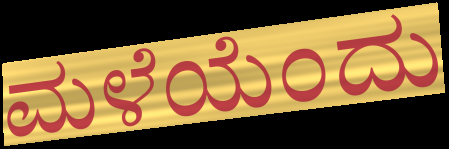
ಮಳೆಯೆಂದು